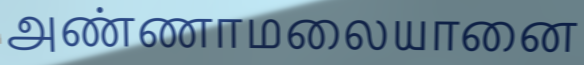
அண்ணாமலையானை